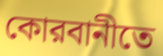
কোরবানীতে